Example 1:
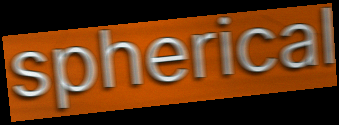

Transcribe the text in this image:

spherical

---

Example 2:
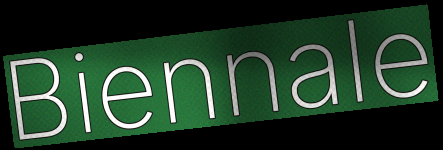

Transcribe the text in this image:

Biennale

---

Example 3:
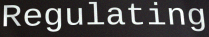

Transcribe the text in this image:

Regulating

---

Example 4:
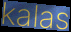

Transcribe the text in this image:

kalas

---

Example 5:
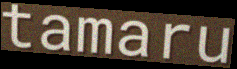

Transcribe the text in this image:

tamaru